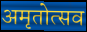
अमृतोत्सव